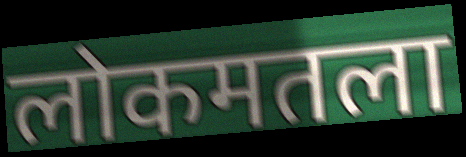
लोकमतला